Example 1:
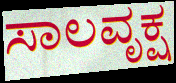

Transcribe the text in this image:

ಸಾಲವೃಕ್ಷ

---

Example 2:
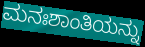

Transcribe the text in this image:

ಮನಃಶಾಂತಿಯನ್ನು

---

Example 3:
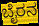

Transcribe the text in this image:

ಬೈರನ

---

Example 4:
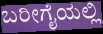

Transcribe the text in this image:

ಬರೀಗೈಯಲ್ಲಿ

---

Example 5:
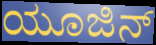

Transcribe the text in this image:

ಯೂಜಿನ್